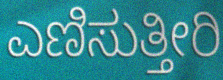
ಎಣಿಸುತ್ತೀರಿ